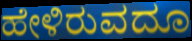
ಹೇಳಿರುವದೂ